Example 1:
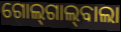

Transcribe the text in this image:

ଗୋଲ୍‍ଗାଲ୍‍ବାଲା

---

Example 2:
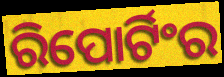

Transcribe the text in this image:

ରିପୋର୍ଟିଂର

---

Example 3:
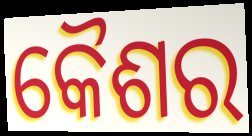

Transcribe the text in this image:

କୈଶର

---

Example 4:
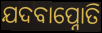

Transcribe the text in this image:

ଯଦବାପ୍ନୋତି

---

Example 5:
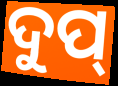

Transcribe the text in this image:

ଦୁପ୍